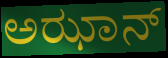
ಅಝಾನ್